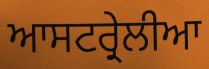
ਆਸਟਰ੍ਰੇਲੀਆ